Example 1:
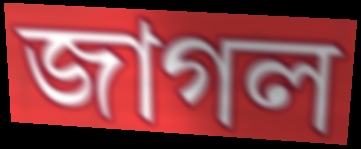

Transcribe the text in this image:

জাগল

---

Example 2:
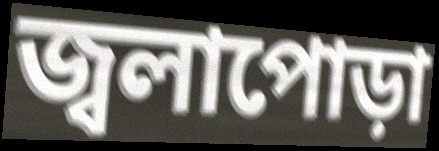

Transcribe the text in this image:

জ্বলাপোড়া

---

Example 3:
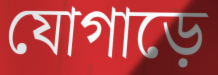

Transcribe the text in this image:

যোগাড়ে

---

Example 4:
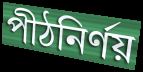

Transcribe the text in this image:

পীঠনির্ণয়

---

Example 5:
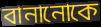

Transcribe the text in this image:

বানানোকে